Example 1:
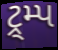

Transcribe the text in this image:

ટ્ર્મ્પ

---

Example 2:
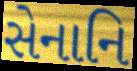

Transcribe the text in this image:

સેનાનિ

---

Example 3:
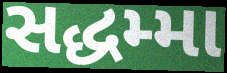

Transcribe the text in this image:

સદ્ધમ્મા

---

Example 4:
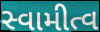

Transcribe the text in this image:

સ્વામીત્વ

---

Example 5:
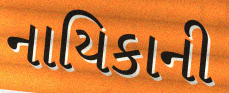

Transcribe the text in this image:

નાયિકાની